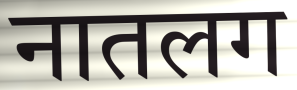
नातलग